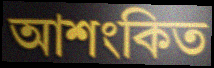
আশংকিত